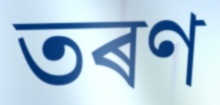
তৰণ